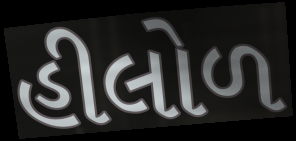
હીલોળ